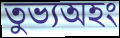
তুভ্যঅহং